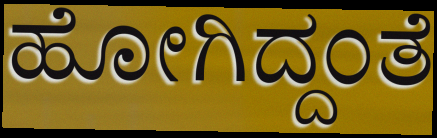
ಹೋಗಿದ್ದಂತೆ